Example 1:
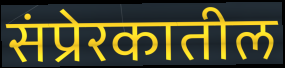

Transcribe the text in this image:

संप्रेरकातील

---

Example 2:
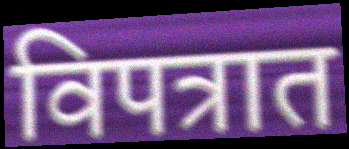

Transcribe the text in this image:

विपत्रात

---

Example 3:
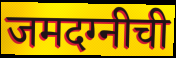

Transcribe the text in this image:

जमदग्नीची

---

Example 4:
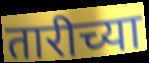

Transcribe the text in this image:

तारीच्या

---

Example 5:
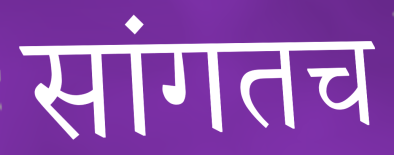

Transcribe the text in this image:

सांगतच